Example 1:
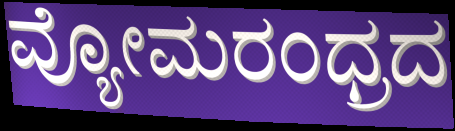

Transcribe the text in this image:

ವ್ಯೋಮರಂಧ್ರದ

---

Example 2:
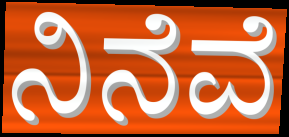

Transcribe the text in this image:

ನಿನೆವೆ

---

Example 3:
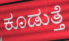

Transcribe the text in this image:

ಕೂಡುತ್ತೆ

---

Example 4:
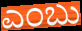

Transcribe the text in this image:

ಎಂಬು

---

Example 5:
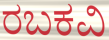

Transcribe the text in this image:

ರಬಕವಿ